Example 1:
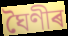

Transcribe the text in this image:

ঘৈণীৰ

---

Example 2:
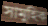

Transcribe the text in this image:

সামুহিক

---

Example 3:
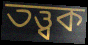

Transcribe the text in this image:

তত্ত্বক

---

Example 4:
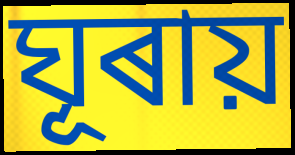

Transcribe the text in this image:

ঘূৰায়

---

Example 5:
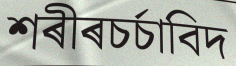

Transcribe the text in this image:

শৰীৰচৰ্চাবিদ